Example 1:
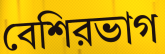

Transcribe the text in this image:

বেশিরভাগ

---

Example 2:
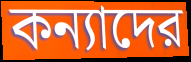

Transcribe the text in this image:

কন্যাদের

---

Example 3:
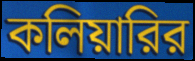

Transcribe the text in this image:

কলিয়ারির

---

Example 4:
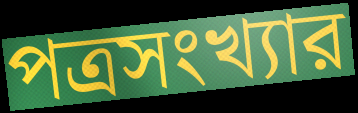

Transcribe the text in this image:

পত্রসংখ্যার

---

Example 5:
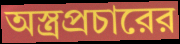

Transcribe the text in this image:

অস্ত্রপ্রচারের